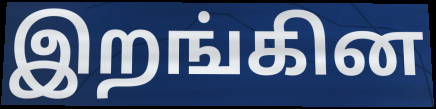
இறங்கின